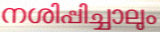
നശിപ്പിച്ചാലും